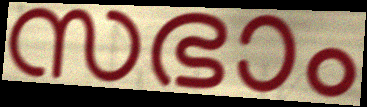
സഭാം